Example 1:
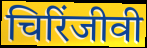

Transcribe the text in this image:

चिरिंजीवी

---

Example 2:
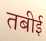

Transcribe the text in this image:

तबीई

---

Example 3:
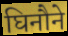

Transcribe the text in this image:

घिनौने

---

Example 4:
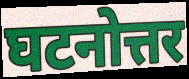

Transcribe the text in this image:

घटनोत्तर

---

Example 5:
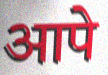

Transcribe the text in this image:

आपे